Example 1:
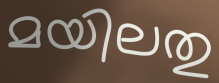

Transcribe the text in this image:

മയിലതു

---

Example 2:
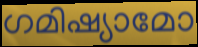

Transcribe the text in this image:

ഗമിഷ്യാമോ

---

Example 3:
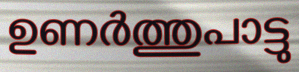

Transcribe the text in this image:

ഉണർത്തുപാട്ടു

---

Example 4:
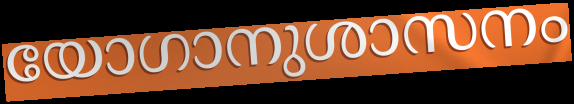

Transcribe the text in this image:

യോഗാനുശാസനം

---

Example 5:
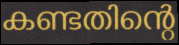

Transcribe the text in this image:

കണ്ടതിന്റെ